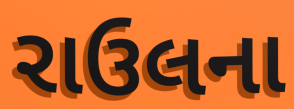
રાઉલના